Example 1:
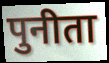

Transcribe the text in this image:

पुनीता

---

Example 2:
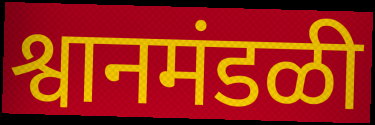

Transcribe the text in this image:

श्वानमंडळी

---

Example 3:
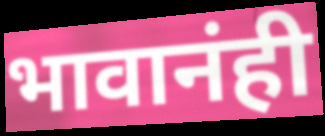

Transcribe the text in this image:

भावानंही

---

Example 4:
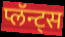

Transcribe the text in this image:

प्लॅन्ट्स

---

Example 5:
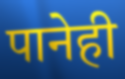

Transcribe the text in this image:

पानेही